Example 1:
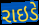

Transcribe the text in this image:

રાઇડે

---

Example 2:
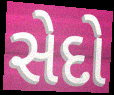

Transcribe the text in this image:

સેદો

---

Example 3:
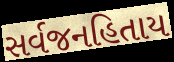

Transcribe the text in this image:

સર્વજનહિતાય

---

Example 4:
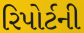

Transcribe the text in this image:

રિપોર્ટની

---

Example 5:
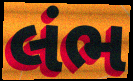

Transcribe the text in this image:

લંભ